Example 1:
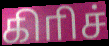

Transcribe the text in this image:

கிரிச்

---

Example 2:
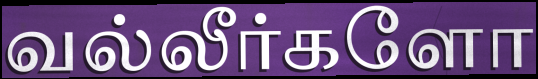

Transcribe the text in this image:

வல்லீர்களோ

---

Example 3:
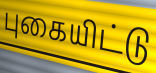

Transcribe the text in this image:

புகையிட்டு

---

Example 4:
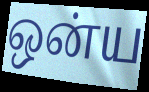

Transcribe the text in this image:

ஒன்ய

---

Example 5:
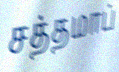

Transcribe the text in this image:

சத்தமாப்